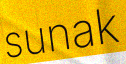
sunak